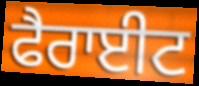
ਫੈਰਾਈਟ